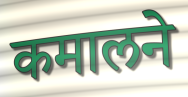
कमालने